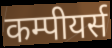
कम्पीयर्स